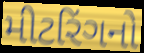
મીટરિંગનો